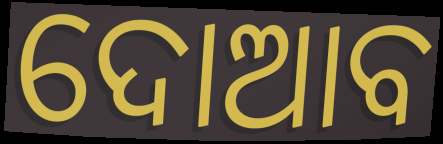
ଦୋଆବ